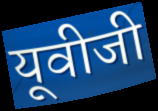
यूवीजी